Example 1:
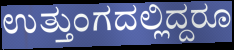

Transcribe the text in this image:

ಉತ್ತುಂಗದಲ್ಲಿದ್ದರೂ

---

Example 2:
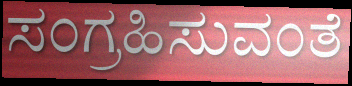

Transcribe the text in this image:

ಸಂಗ್ರಹಿಸುವಂತೆ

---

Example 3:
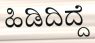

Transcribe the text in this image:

ಹಿಡಿದಿದ್ದೆ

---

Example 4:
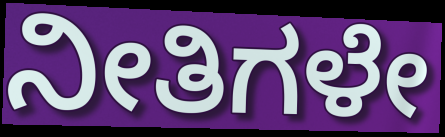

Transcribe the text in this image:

ನೀತಿಗಳೇ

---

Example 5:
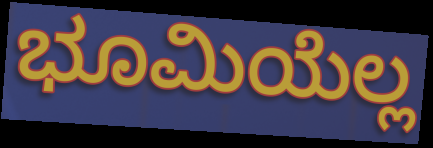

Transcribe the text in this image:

ಭೂಮಿಯೆಲ್ಲ